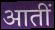
आतीं